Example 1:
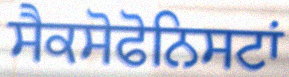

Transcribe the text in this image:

ਸੈਕਸੋਫੋਨਿਸਟਾਂ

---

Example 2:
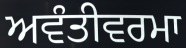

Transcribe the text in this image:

ਅਵੰਤੀਵਰਮਾ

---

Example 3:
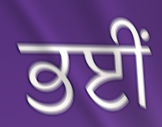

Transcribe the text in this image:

ਭਈਂ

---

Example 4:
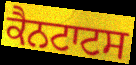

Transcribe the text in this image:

ਕੈਨਟਾਟਸ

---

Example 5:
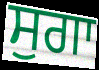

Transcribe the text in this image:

ਸੁਗਾ